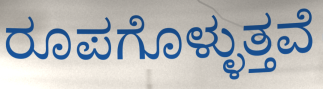
ರೂಪಗೊಳ್ಳುತ್ತವೆ